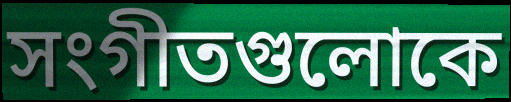
সংগীতগুলোকে